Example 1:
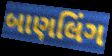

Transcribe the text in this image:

બાણલિંગ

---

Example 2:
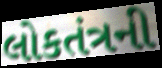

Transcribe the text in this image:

લોકતંત્રની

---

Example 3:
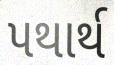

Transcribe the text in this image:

પથાર્થ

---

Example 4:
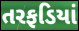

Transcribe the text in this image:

તરફડિયાં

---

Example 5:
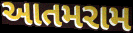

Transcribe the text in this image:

આતમરામ